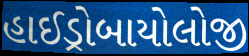
હાઈડ્રોબાયોલોજી